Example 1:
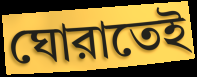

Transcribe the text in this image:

ঘোরাতেই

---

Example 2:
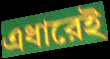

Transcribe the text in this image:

এধারেই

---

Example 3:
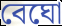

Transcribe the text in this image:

বেঘো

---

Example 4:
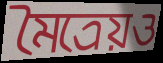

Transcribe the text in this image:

মৈত্রেয়ও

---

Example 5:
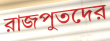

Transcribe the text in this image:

রাজপুতদের